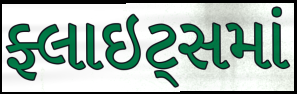
ફ્લાઇટ્સમાં